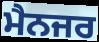
ਮੈਨਜਰ